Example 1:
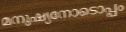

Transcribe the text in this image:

മനുഷ്യനോടൊപ്പം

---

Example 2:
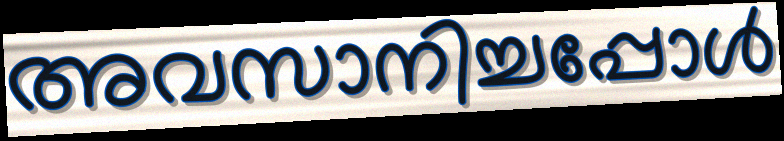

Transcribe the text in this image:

അവസാനിച്ചപ്പോൾ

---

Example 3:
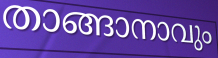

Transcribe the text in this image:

താങ്ങാനാവും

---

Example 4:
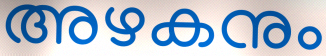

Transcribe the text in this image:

അഴകനും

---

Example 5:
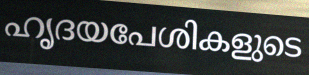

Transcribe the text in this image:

ഹൃദയപേശികളുടെ